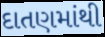
દાતણમાંથી